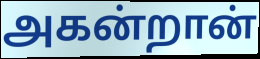
அகன்றான்